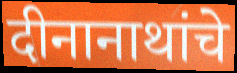
दीनानाथांचे